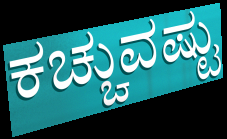
ಕಚ್ಚುವಷ್ಟು